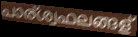
പാര്ശ്വഫലങ്ങള്